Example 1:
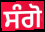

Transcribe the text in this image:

ਸੰਗੋ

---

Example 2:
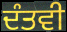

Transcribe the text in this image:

ਦੰਤਵੀ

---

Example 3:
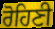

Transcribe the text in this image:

ਰੋਹਿਣੀ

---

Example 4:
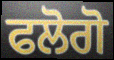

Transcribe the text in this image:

ਫਲੋਗੋ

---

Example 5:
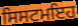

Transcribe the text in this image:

ਸਿਸਟਮਇਹ